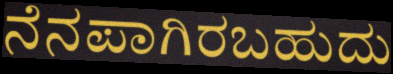
ನೆನಪಾಗಿರಬಹುದು